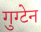
गुग्टेन